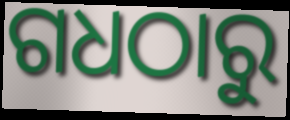
ଗଧଠାରୁ